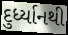
દુર્ધ્યાનથી